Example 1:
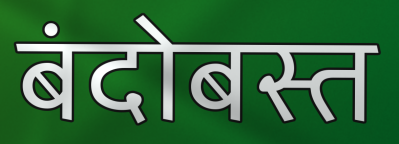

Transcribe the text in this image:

बंदोबस्त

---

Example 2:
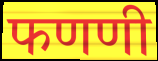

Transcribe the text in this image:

फणणी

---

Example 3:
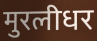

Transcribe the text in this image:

मुरलीधर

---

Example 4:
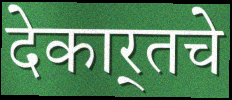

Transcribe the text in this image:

देकार्तचे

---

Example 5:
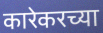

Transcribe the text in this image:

कारेकरच्या